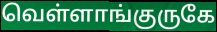
வெள்ளாங்குருகே